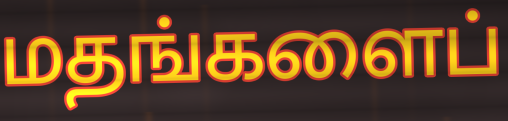
மதங்களைப்